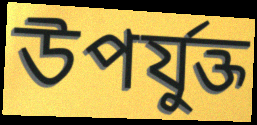
উপৰ্যুক্ত